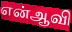
என்ஆவி